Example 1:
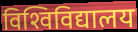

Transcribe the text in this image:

विश्विविद्यालय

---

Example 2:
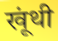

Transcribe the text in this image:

खूंथी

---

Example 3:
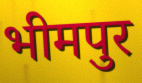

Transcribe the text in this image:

भीमपुर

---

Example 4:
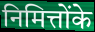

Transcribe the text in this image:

निमित्तोंके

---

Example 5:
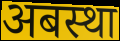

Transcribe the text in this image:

अबस्था